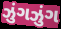
ઝુંગઝુંગ